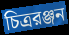
চিত্ররঞ্জন